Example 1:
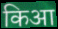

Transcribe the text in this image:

किआ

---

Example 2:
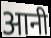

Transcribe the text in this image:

आनी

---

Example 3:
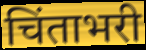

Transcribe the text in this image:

चिंताभरी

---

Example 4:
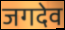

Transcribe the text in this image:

जगदेव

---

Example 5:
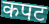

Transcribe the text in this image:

कपट